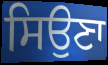
ਸਿਉਣਾ